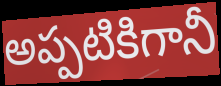
అప్పటికిగానీ